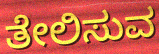
ತೇಲಿಸುವ